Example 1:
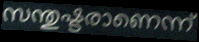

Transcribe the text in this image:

സന്തുഷ്ടരാണെന്ന്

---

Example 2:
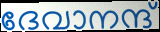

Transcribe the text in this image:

ദേവാനന്ദ്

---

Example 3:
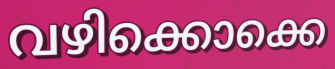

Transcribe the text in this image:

വഴിക്കൊക്കെ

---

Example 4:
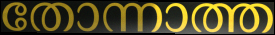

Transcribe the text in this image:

തോന്നാത്ത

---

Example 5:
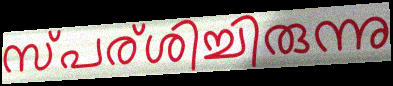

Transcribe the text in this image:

സ്പര്ശിച്ചിരുന്നു